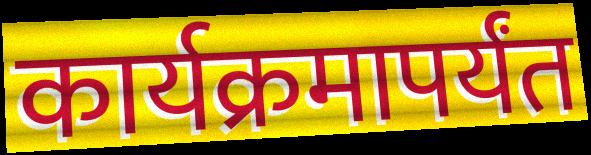
कार्यक्रमापर्यंत